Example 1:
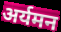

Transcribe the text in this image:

अर्यमन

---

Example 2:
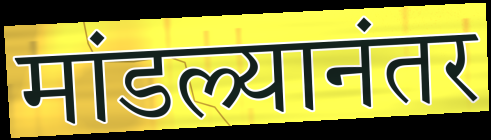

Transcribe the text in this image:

मांडल्यानंतर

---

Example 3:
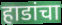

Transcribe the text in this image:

हाडांचा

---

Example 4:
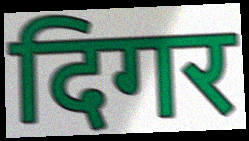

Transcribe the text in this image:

दिगर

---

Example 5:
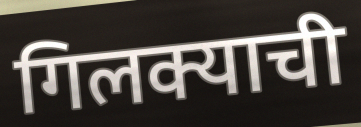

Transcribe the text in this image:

गिलक्याची